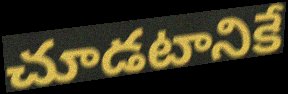
చూడటానికే